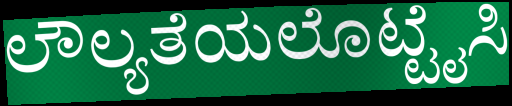
ಲೌಲ್ಯತೆಯಲೊಟ್ಟೈಸಿ